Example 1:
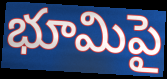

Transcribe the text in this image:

భూమిపై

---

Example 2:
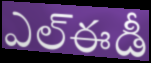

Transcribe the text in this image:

ఎల్ఈడీ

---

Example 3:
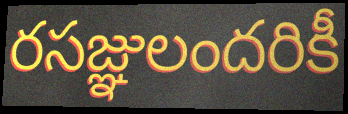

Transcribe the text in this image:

రసజ్ఞులందరికీ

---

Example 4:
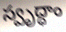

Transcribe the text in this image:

స్వృద్ధాం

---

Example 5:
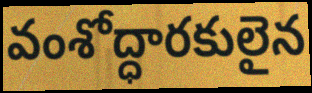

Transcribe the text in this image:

వంశోద్ధారకులైన